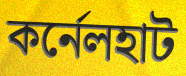
কর্নেলহাট